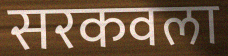
सरकवला